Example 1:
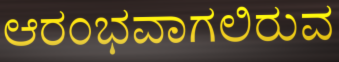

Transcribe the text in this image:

ಆರಂಭವಾಗಲಿರುವ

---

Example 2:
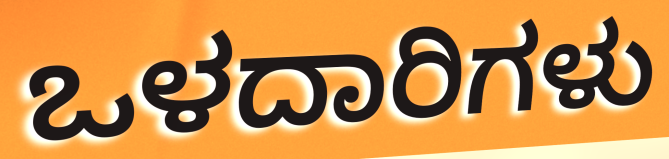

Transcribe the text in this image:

ಒಳದಾರಿಗಳು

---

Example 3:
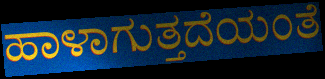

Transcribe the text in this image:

ಹಾಳಾಗುತ್ತದೆಯಂತೆ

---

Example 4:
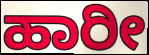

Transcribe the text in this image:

ಹಾರೀ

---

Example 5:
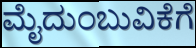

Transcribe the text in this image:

ಮೈದುಂಬುವಿಕೆಗೆ